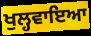
ਖੁਲ੍ਹਵਾਇਆ